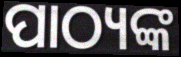
ପାଠ୍ୟଙ୍କ